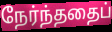
நேர்ந்ததைப்